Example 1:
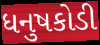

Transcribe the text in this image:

ધનુષકોડી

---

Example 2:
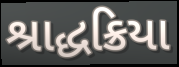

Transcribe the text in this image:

શ્રાદ્ધક્રિયા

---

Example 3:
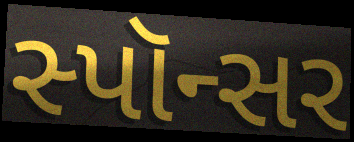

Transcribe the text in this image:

સ્પૉન્સર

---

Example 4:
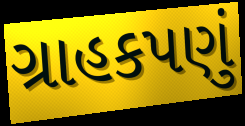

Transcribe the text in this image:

ગ્રાહકપણું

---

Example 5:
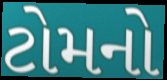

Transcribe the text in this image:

ટોમનો